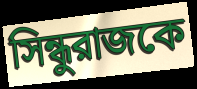
সিন্ধুরাজকে